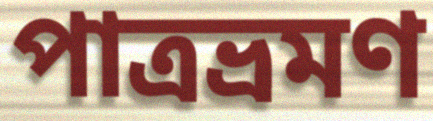
পাত্রভ্রমণ